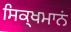
ਸਿਕ੍ਖਮਾਨਂ